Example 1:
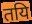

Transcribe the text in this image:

तयि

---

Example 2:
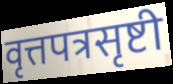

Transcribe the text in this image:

वृत्तपत्रसृष्टी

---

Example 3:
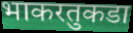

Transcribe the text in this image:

भाकरतुकडा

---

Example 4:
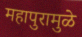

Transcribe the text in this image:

महापुरामुळे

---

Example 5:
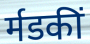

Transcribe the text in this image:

र्मडकीं